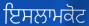
ਇਸਲਾਮਕੋਟ